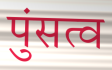
पुंसत्व